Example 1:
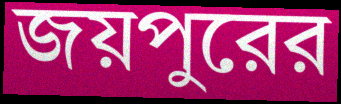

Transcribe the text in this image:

জয়পুরের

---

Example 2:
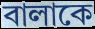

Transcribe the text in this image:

বালাকে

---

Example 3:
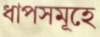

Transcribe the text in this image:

ধাপসমূহে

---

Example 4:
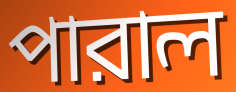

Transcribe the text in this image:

পারাল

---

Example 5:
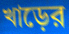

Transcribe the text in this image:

খাড়ের